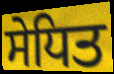
ਸੇਧਿਤ